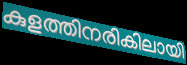
കുളത്തിനരികിലായി